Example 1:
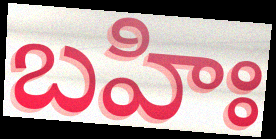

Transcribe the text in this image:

బహిః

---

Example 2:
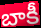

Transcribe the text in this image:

బాకీ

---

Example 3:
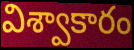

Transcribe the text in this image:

విశ్వాకారం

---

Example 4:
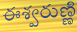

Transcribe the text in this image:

ఈశ్వరుణ్ణి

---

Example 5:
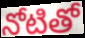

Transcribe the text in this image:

నోటితో